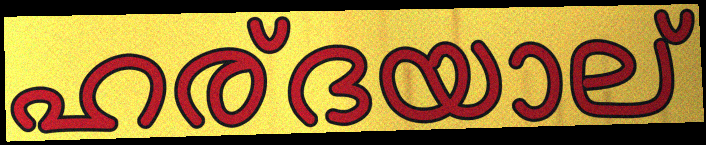
ഹര്ദയാല്